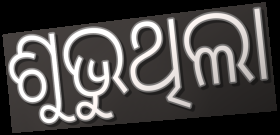
ଶୁଭୁଥିଲା